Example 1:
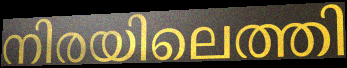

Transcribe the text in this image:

നിരയിലെത്തി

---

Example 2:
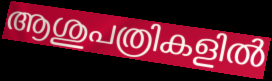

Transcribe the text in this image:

ആശുപത്രികളിൽ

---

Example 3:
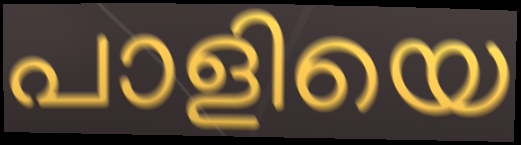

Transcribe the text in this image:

പാളിയെ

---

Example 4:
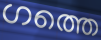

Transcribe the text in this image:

ഗത്തെ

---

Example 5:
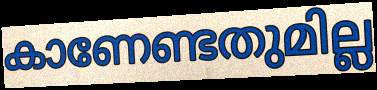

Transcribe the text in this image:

കാണേണ്ടതുമില്ല